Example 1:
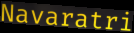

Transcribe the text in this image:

Navaratri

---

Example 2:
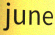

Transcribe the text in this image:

june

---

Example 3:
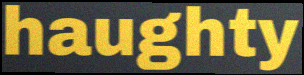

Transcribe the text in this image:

haughty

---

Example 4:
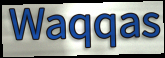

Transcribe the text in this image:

Waqqas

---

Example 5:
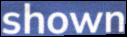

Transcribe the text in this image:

shown